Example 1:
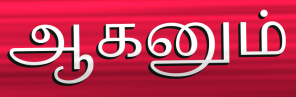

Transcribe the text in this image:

ஆகனும்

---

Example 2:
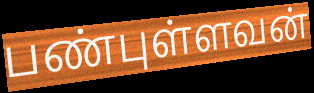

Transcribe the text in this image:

பண்புள்ளவன்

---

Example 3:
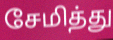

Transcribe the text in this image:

சேமித்து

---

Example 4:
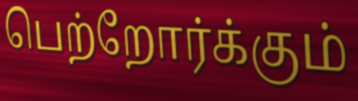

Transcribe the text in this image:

பெற்றோர்க்கும்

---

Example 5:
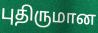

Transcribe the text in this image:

புதிருமான